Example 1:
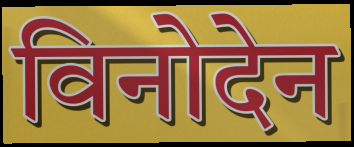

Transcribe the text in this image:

विनोदेन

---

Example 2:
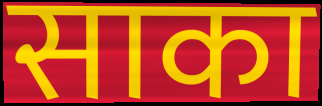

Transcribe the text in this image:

साका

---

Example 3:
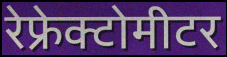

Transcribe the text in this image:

रेफ्रेक्टोमीटर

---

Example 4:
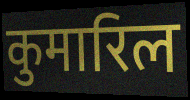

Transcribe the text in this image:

कुमारिल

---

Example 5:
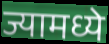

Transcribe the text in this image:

ज्यामध्ये